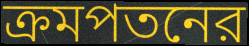
ক্রমপতনের